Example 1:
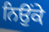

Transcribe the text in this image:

ਨਿਉਂਕੇ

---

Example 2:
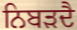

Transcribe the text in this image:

ਨਿਬੜਦੈ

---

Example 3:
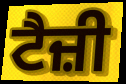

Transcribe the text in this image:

ਟੈਜ਼ੀ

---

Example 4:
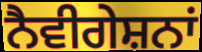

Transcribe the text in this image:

ਨੈਵੀਗੇਸ਼ਨਾਂ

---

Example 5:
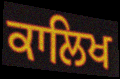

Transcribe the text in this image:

ਕਾਲਿਖ